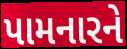
પામનારને